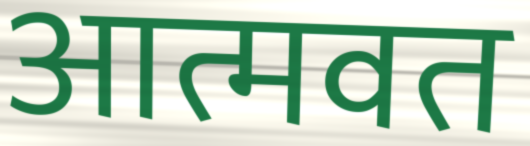
आत्मवत